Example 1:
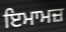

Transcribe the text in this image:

ਇਮਾਮਜ਼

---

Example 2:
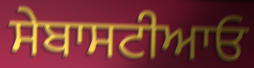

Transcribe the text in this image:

ਸੇਬਾਸਟੀਆਓ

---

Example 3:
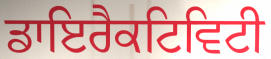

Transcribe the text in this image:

ਡਾਇਰੈਕਟਿਵਿਟੀ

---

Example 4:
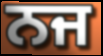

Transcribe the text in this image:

ਨਜ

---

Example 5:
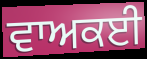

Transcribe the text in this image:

ਵਾਅਕਈ